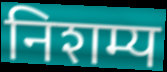
निशम्य